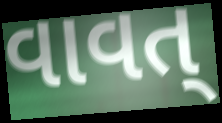
વાવત્